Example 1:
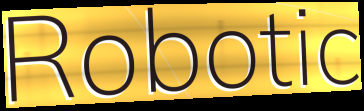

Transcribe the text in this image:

Robotic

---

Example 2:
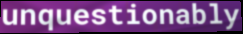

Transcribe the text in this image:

unquestionably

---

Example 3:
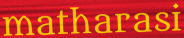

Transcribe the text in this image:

matharasi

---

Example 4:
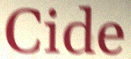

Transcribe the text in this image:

Cide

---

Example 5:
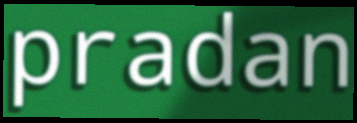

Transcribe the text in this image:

pradan